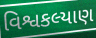
વિશ્વકલ્યાણ